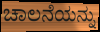
ಚಾಲನೆಯನ್ನು